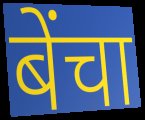
बेंचा